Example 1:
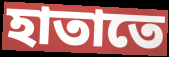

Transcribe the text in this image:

হাতাতে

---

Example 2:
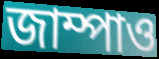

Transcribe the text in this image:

জাম্পাও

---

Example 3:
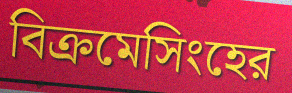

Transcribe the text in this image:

বিক্রমেসিংহের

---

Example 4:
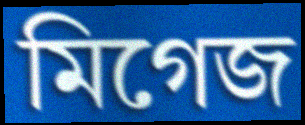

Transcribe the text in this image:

মিগেজ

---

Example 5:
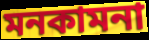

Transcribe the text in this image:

মনকামনা